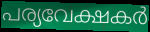
പര്യവേക്ഷകർ